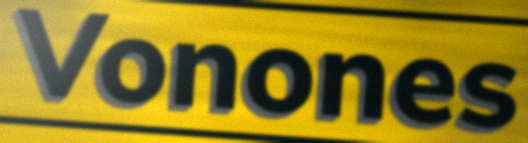
Vonones